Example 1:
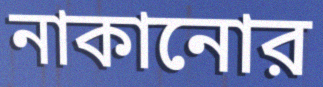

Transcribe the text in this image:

নাকানোর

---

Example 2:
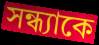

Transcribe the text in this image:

সন্ধ্যাকে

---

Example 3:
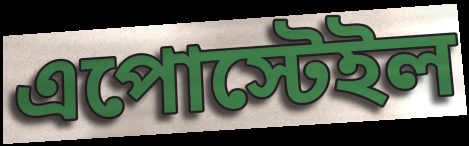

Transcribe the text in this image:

এপোস্টেইল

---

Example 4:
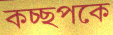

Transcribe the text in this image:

কচ্ছপকে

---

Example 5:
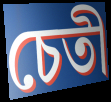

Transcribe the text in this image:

চেতী